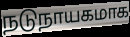
நடுநாயகமாக